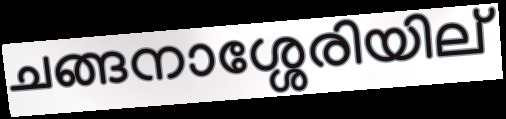
ചങ്ങനാശ്ശേരിയില്